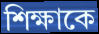
শিক্ষাকে